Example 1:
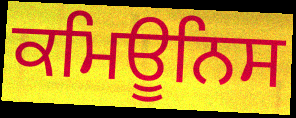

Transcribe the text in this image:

ਕਮਿਊਨਿਸ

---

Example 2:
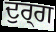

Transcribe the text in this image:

ਦੁਰ੍ਗ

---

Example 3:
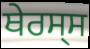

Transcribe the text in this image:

ਥੇਰਸ੍ਸ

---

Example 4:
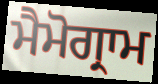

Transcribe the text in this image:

ਮੈਮੋਗ੍ਰਾਮ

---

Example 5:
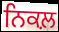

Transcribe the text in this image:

ਨਿਕਲ਼